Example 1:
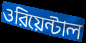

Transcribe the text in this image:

ওরিয়েন্টাল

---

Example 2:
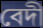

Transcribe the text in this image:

বেদী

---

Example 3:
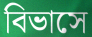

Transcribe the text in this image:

বিভাসে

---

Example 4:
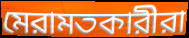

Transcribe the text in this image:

মেরামতকারীরা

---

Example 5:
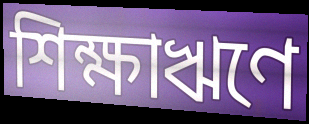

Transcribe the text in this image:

শিক্ষাঋণে